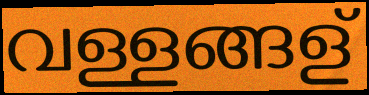
വള്ളങ്ങള്